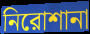
নিরোশানা